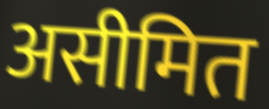
असीमित